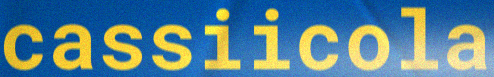
cassiicola